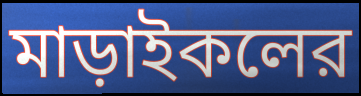
মাড়াইকলের